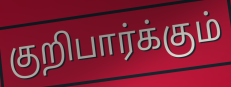
குறிபார்க்கும்